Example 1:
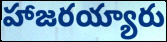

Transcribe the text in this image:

హాజరయ్యారు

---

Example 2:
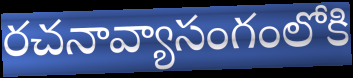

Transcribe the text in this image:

రచనావ్యాసంగంలోకి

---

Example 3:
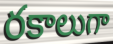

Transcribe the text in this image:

రకాలుగా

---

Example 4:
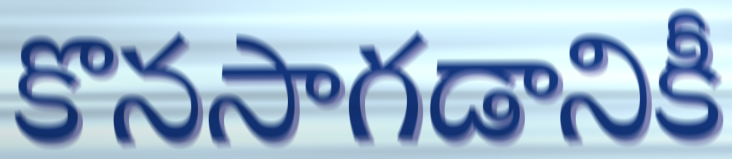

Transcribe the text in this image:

కొనసాగడానికీ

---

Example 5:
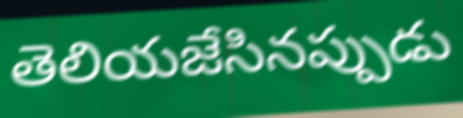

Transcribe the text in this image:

తెలియజేసినప్పుడు